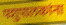
पशुपालकांना